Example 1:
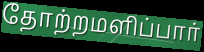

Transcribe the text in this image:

தோற்றமளிப்பார்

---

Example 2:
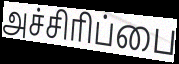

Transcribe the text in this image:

அச்சிரிப்பை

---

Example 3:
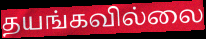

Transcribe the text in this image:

தயங்கவில்லை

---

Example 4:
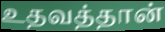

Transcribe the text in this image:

உதவத்தான்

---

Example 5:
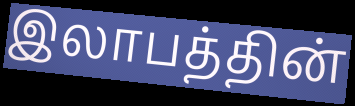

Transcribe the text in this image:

இலாபத்தின்